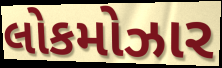
લોકમોઝાર